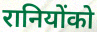
रानियोंको